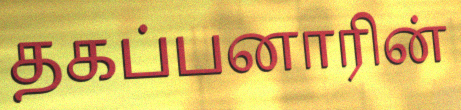
தகப்பனாரின்